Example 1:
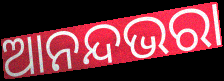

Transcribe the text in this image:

ଆନନ୍ଦଭରା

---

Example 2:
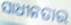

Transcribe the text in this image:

ସାଧୀନତାର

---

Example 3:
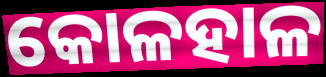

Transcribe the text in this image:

କୋଳହାଳ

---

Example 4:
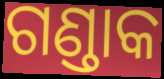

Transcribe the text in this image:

ଗଣ୍ଡାକ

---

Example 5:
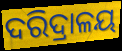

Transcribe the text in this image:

ଦରିଦ୍ରାଳୟ